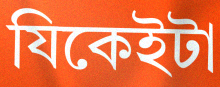
যিকেইটা